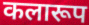
कलारूप